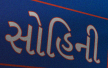
સોહિની